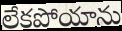
లేకపోయాను